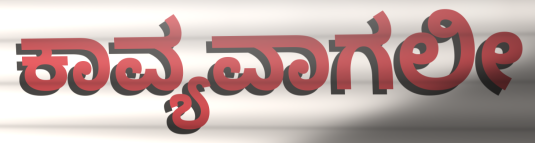
ಕಾವ್ಯವಾಗಲೀ